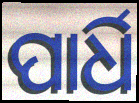
ପାର୍ଧି